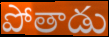
పోతాడు